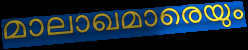
മാലാഖമാരെയും